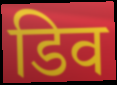
डिव